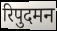
रिपुदमन